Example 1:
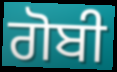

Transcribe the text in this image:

ਗੋਬੀ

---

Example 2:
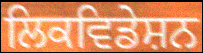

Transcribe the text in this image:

ਲਿਕਵਿਡੇਸ਼ਨ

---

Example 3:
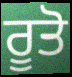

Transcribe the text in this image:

ਰੂਤੋ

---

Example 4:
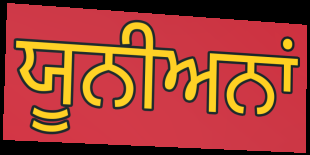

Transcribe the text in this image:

ਯੂਨੀਅਨਾਂ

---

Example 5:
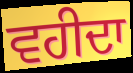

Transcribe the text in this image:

ਵਹੀਦਾ